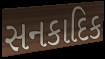
સનકાદિક